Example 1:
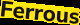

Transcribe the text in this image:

Ferrous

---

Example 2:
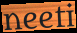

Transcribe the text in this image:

neeti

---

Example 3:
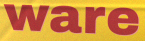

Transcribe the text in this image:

ware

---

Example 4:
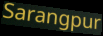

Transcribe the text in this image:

Sarangpur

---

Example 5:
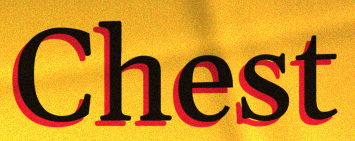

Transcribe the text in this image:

Chest